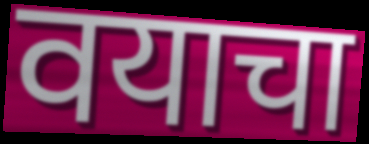
वयाचा